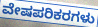
ವೇಷಪರಿಕರಗಳು